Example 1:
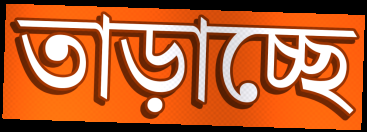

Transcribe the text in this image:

তাড়াচ্ছে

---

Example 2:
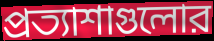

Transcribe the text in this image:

প্রত্যাশাগুলোর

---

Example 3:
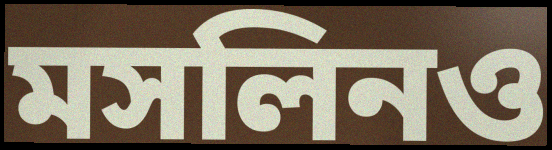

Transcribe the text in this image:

মসলিনও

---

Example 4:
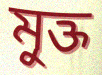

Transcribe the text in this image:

মুক্ত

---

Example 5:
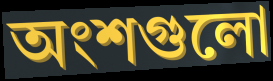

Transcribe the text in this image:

অংশগুলো